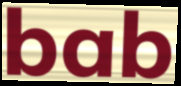
bab